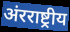
अंरराष्ट्रीय